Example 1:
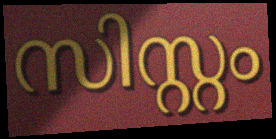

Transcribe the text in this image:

സിസ്റ്റം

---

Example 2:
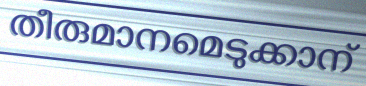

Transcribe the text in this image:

തീരുമാനമെടുക്കാന്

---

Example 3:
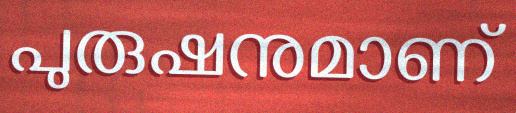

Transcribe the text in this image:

പുരുഷനുമാണ്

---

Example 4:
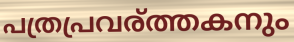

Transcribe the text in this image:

പത്രപ്രവര്ത്തകനും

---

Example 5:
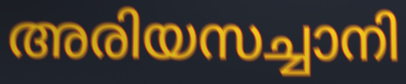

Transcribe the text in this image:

അരിയസച്ചാനി